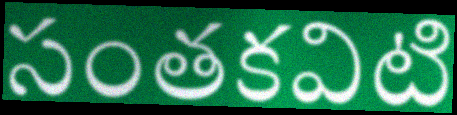
సంతకవిటి